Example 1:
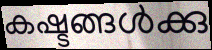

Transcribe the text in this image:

കഷ്ടങ്ങൾക്കു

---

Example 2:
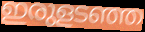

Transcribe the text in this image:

ഇരുളടഞ്ഞ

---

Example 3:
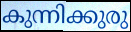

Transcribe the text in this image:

കുന്നിക്കുരു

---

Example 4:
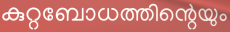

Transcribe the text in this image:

കുറ്റബോധത്തിന്റെയും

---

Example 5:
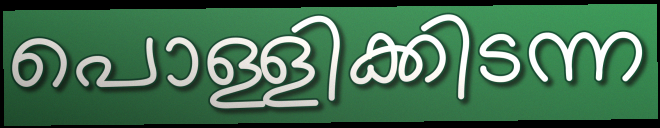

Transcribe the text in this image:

പൊള്ളിക്കിടന്ന